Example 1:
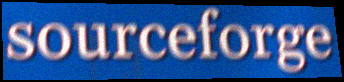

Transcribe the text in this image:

sourceforge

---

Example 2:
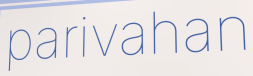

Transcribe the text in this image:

parivahan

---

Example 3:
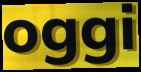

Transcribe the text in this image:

oggi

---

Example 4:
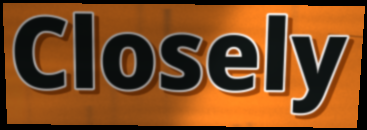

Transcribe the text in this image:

Closely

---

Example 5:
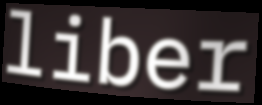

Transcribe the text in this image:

liber